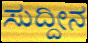
ಸುದ್ದೀನ